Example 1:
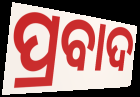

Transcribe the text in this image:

ପ୍ରବାଦ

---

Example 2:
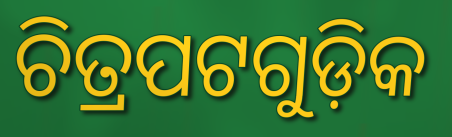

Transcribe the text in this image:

ଚିତ୍ରପଟଗୁଡ଼ିକ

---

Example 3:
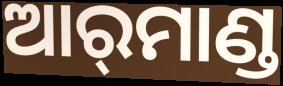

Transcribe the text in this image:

ଆର୍‌ମାଣ୍ଡ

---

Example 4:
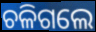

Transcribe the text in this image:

ଚଳିଗଲେ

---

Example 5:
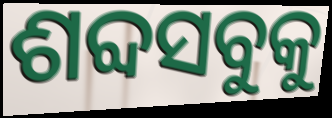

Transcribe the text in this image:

ଶବ୍ଦସବୁକୁ